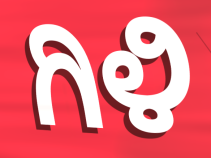
ಗಿಳಿ